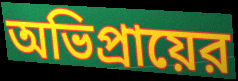
অভিপ্রায়ের